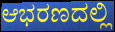
ಆಭರಣದಲ್ಲಿ